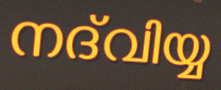
നദ്‌വിയ്യ